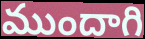
ముందాగి